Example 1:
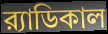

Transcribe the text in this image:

র‍্যাডিকাল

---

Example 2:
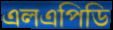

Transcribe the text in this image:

এলএপিডি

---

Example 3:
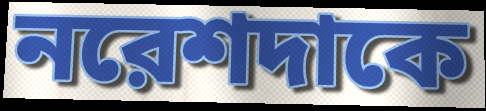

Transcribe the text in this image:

নরেশদাকে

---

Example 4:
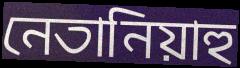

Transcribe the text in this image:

নেতানিয়াহু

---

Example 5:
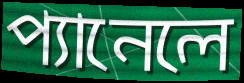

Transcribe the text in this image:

প্যানেলে